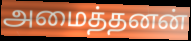
அமைத்தனன்